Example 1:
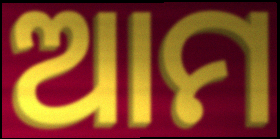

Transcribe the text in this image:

ଆମ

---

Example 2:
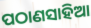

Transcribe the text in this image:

ପଠାଣସାହିଆ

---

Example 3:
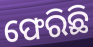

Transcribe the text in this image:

ଫେରିଛି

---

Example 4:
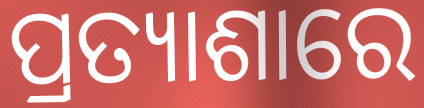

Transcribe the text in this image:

ପ୍ରତ୍ୟାଶାରେ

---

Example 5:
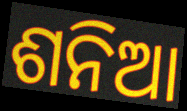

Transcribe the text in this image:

ଶନିଆ